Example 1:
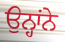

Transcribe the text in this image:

ਉਨ੍ਹਾਂਨੇ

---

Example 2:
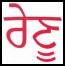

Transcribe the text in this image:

ਰੇਣੂ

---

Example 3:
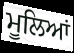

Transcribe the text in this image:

ਮੂਲਿਆਂ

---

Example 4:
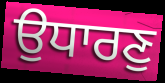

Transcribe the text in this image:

ਉਧਾਰਣੁ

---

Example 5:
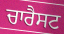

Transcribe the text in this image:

ਚਾਰੈਸਟ